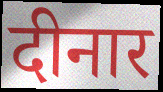
दीनार